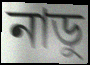
নাডু